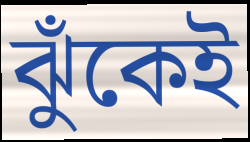
ঝুঁকেই